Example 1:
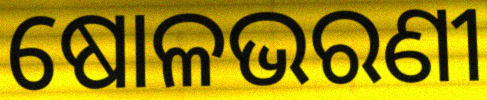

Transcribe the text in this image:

ଷୋଳଭରଣୀ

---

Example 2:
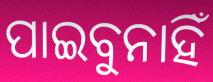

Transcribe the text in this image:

ପାଇବୁନାହିଁ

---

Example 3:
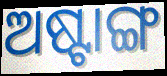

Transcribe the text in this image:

ଅଷ୍ଟାଙ୍ଗ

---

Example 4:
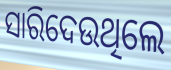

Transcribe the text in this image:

ସାରିଦେଉଥିଲେ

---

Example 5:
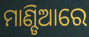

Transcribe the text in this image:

ମାଣ୍ଡିଆରେ